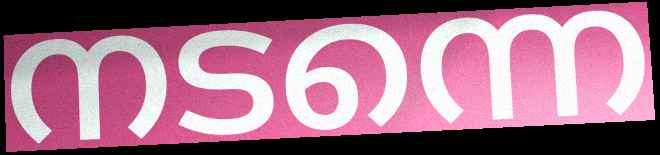
നടന്നെ